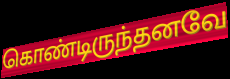
கொண்டிருந்தனவே